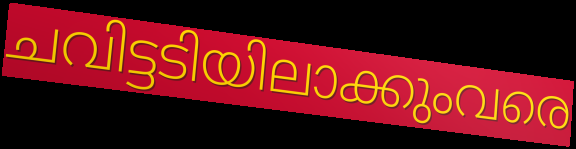
ചവിട്ടടിയിലാക്കുംവരെ